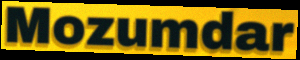
Mozumdar